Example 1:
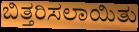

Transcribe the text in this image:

ಬಿತ್ತರಿಸಲಾಯಿತು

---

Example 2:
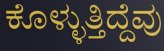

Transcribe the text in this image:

ಕೊಳ್ಳುತ್ತಿದ್ದೆವು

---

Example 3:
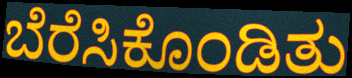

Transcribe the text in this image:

ಬೆರೆಸಿಕೊಂಡಿತು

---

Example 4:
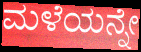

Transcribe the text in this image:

ಮಳೆಯನ್ನೇ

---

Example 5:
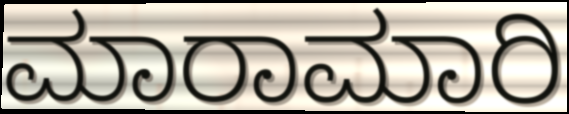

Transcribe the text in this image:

ಮಾರಾಮಾರಿ